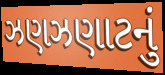
ઝણઝણાટનું